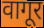
वागूर